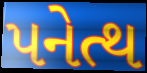
પનેત્થ